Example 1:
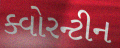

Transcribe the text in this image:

ક્વોરન્ટીન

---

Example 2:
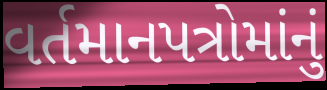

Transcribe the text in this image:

વર્તમાનપત્રોમાંનું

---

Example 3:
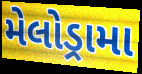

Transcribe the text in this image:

મેલોડ્રામા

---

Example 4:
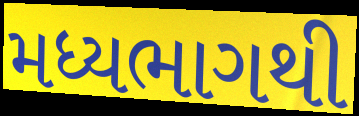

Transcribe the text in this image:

મધ્યભાગથી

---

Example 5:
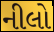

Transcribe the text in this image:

નીલો